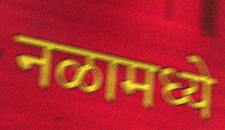
नळामध्ये